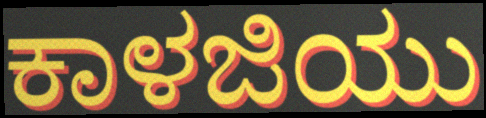
ಕಾಳಜಿಯು